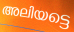
അലിയട്ടെ